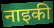
नाइकी